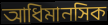
আধিমানসিক